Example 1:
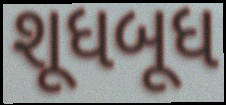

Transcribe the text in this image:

શૂધબૂધ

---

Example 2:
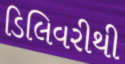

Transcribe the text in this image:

ડિલિવરીથી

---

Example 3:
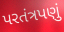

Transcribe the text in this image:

પરતંત્રપણું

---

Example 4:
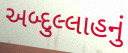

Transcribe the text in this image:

અબ્દુલ્લાહનું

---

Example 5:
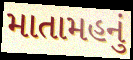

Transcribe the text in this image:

માતામહનું